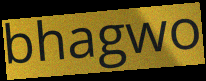
bhagwo